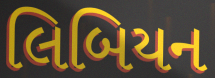
લિબિયન